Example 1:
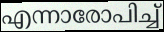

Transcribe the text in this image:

എന്നാരോപിച്ച്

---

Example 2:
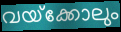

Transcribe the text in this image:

വയ്‌ക്കോലും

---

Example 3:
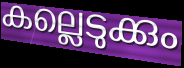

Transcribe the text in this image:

കല്ലെടുക്കും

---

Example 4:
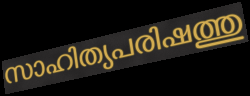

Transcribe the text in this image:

സാഹിത്യപരിഷത്തു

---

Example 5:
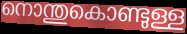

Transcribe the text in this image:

നൊന്തുകൊണ്ടുള്ള